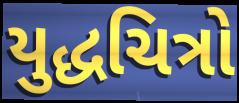
યુદ્ધચિત્રો